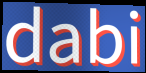
dabi